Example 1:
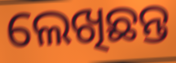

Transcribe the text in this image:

ଲେଖିଛନ୍ତ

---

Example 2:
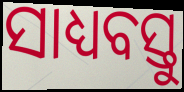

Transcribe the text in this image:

ସାଧ୍ୟବସ୍ତୁ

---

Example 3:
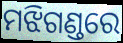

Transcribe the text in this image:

ମଝିଗଣ୍ଡରେ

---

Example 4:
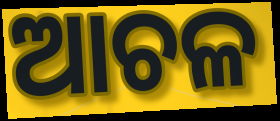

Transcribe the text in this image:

ଆଚଳ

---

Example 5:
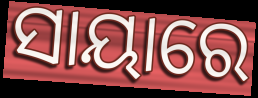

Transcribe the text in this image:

ସାୟାରେ